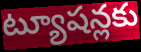
ట్యూషన్లకు